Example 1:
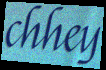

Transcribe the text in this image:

chhey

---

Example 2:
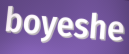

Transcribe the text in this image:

boyeshe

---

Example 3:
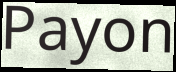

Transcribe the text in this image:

Payon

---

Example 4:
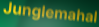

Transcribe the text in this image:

Junglemahal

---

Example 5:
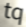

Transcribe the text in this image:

tq